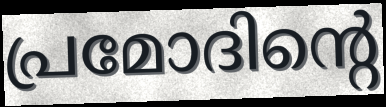
പ്രമോദിന്റെ